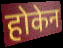
होकेन